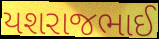
યશરાજભાઈ